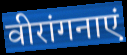
वीरांगनाएं